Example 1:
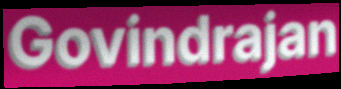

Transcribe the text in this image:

Govindrajan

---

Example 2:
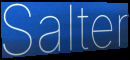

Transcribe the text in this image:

Salter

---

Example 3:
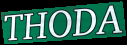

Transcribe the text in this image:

THODA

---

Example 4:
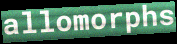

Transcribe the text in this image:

allomorphs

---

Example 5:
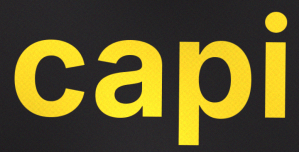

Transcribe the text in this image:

capi